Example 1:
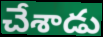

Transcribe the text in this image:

చేశాడు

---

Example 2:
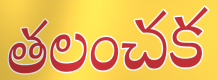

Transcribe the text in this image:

తలంచక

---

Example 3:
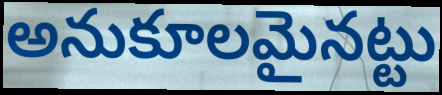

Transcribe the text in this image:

అనుకూలమైనట్టు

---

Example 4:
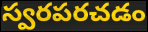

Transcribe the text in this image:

స్వరపరచడం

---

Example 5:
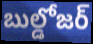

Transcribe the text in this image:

బుల్డోజర్